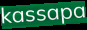
kassapa